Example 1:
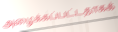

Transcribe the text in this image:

அழைக்கப்பட்டதாகக்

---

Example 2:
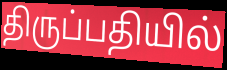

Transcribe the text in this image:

திருப்பதியில்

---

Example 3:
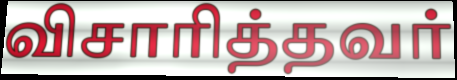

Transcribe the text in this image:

விசாரித்தவர்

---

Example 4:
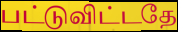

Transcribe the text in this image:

பட்டுவிட்டதே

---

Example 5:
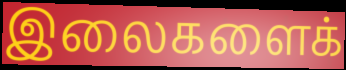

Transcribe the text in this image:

இலைகளைக்